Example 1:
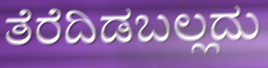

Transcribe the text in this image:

ತೆರೆದಿಡಬಲ್ಲದು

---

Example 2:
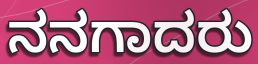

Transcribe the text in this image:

ನನಗಾದರು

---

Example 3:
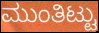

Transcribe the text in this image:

ಮುಂತಿಟ್ಟು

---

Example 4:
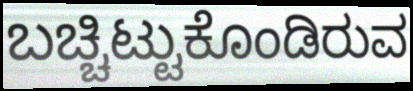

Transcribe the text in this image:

ಬಚ್ಚಿಟ್ಟುಕೊಂಡಿರುವ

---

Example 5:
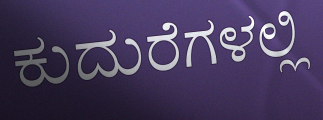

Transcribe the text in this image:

ಕುದುರೆಗಳಲ್ಲಿ